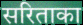
सरिताका